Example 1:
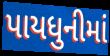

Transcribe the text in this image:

પાયધુનીમાં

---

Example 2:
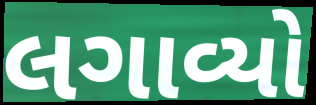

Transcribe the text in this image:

લગાવ્યો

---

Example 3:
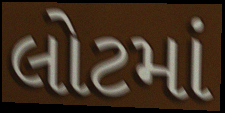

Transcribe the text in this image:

લોટમાં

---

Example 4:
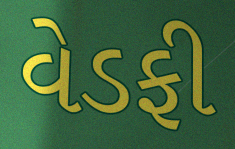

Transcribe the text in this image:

વેડફી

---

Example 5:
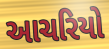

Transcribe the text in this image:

આચરિયો